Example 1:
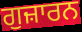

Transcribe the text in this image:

ਗੁਜ਼ਾਰਨ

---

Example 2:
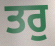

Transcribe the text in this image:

ਤਰੁ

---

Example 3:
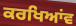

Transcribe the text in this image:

ਕਰਖਿਆਂਵ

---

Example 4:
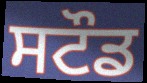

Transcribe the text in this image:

ਸਟੌਡ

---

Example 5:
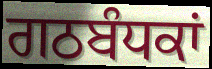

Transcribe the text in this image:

ਗਠਬੰਧਕਾਂ